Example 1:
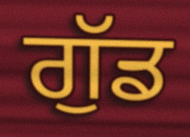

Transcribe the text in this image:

ਗੁੱਡ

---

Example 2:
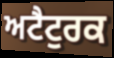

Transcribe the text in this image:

ਅਟੈਟੁਰਕ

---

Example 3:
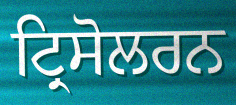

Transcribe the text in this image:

ਟ੍ਰਿਸੋਲਰਨ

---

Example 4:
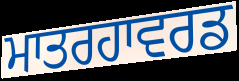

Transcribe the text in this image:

ਮਾਤਰਹਾਵਰਡ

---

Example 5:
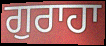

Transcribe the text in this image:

ਗੁਰਾਹਾ